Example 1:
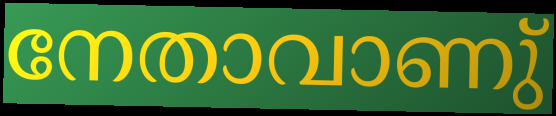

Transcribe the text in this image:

നേതാവാണു്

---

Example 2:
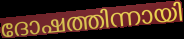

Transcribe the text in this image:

ദോഷത്തിന്നായി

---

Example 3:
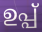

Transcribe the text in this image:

ഉപ്പ്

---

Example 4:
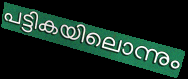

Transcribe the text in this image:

പട്ടികയിലൊന്നും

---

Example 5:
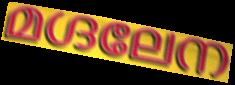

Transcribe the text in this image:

മഗ്ദലേന